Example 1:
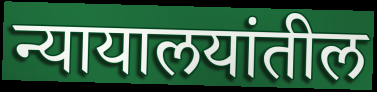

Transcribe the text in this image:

न्यायालयांतील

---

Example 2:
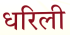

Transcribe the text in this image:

धरिली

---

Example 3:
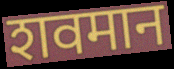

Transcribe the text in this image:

शवमान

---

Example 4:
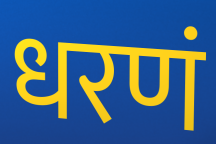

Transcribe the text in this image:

धरणं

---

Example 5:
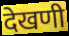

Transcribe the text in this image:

देखणी